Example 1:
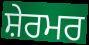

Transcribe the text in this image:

ਸ਼ੇਰਮਰ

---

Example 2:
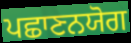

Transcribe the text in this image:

ਪਛਾਣਨਯੋਗ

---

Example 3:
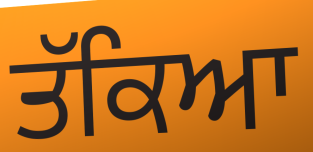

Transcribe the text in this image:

ਤੱਕਿਆ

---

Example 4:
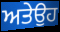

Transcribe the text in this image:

ਅਤੇਉਹ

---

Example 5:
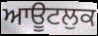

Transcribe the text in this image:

ਆਊਟਲੁਕ